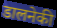
डालनेकी